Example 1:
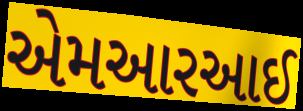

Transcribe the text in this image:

એમઆરઆઈ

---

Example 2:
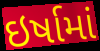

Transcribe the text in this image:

ઇર્ષામાં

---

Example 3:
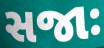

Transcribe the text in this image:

સજાઃ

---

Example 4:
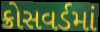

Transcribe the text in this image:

ક્રોસવર્ડમાં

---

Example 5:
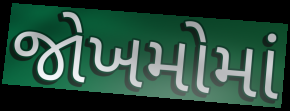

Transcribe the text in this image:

જોખમોમાં